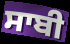
ਸਾਬੀ